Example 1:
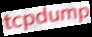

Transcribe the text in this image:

tcpdump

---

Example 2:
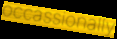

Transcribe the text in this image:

occassionally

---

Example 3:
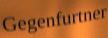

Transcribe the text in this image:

Gegenfurtner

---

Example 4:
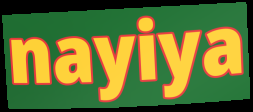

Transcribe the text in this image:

nayiya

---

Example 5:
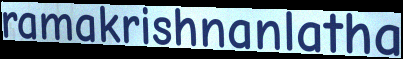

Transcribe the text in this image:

ramakrishnanlatha